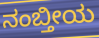
ನಂಬ್ತೀಯ